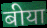
बीया